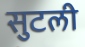
सुटली